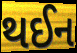
થઈન